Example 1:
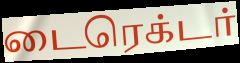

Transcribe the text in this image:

டைரெக்டர்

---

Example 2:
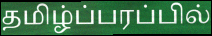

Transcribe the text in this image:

தமிழ்ப்பரப்பில்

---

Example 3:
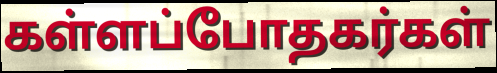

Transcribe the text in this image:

கள்ளப்போதகர்கள்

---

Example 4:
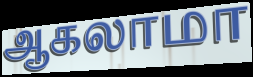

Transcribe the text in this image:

ஆகலாமா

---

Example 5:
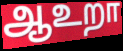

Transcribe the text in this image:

ஆஉறா